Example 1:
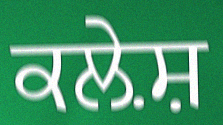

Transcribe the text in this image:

ਕਲ਼ੇਸ਼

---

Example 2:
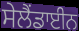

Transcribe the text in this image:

ਸੇਲੈਂਡਾਈਨ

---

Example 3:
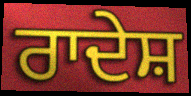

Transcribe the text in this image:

ਰਾਦੇਸ਼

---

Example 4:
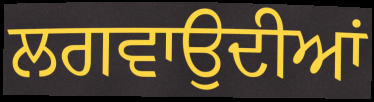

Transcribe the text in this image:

ਲਗਵਾਉਦੀਆਂ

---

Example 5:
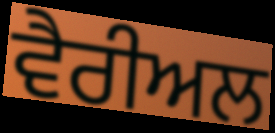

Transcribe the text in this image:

ਵੈਰੀਅਲ